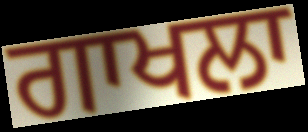
ਗਾਖਲਾ